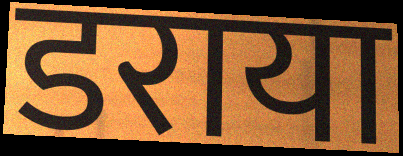
डराया